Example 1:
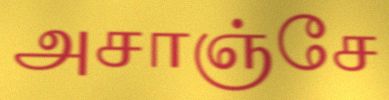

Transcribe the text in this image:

அசாஞ்சே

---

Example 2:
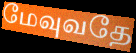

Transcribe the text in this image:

மேவுவதே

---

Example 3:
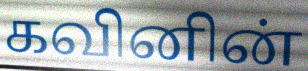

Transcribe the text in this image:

கவினின்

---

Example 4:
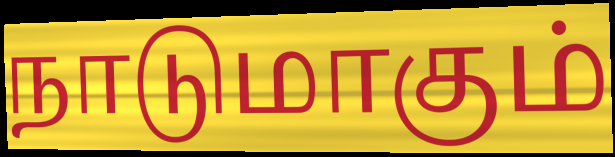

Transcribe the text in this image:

நாடுமாகும்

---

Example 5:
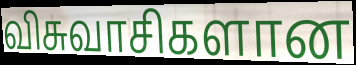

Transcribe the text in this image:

விசுவாசிகளான